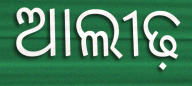
ଆଲୀଢ଼